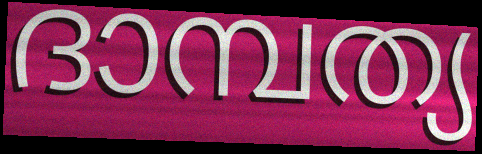
ദാമ്പത്യ